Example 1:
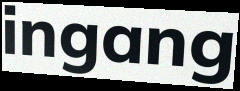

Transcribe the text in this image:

ingang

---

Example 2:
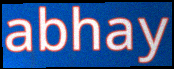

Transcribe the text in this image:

abhay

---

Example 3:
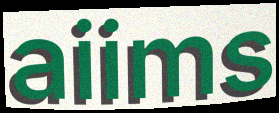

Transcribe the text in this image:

aiims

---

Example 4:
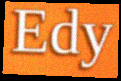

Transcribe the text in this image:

Edy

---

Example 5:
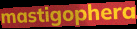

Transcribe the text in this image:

mastigophera